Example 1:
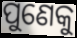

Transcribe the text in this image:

ପୁଣେକୁ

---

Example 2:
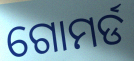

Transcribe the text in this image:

ଗୋମର୍ଡ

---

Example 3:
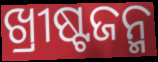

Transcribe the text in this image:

ଖ୍ରୀଷ୍ଟଜନ୍ମ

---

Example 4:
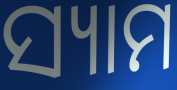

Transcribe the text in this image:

ସ୍ୟାମ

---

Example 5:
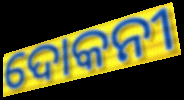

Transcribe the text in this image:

ଦୋକନୀ